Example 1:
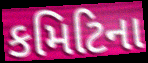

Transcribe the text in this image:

કમિટિના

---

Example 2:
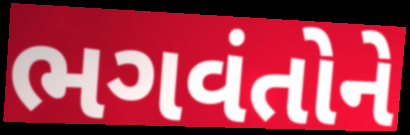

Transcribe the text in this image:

ભગવંતોને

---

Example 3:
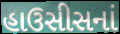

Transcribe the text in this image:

હાઉસીસનાં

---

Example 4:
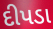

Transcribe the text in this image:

દીપડા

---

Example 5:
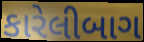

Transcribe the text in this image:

કારેલીબાગ